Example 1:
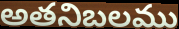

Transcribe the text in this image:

అతనిబలము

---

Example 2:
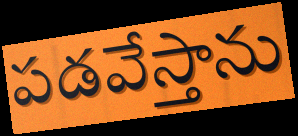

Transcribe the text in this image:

పడవేస్తాను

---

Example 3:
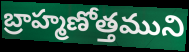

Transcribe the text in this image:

బ్రాహ్మణోత్తముని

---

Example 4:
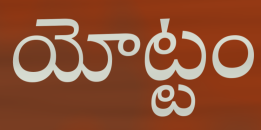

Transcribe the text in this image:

యోట్టం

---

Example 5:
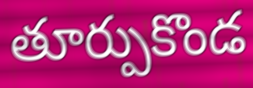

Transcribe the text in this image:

తూర్పుకొండ